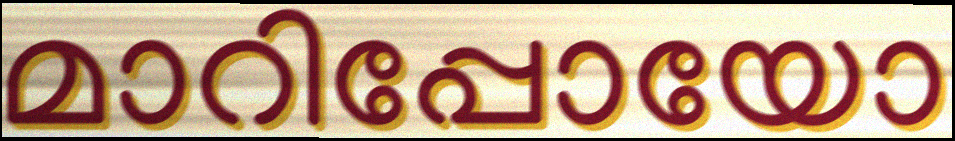
മാറിപ്പോയോ